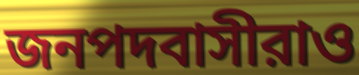
জনপদবাসীরাও